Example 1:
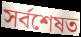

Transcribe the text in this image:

সৰ্বশেষত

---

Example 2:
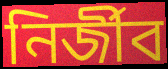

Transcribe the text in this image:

নিৰ্জীব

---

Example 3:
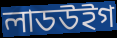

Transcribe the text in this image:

লাডউইগ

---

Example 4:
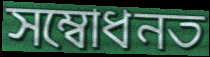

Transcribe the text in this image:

সম্বোধনত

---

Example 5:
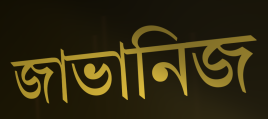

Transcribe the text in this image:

জাভানিজ